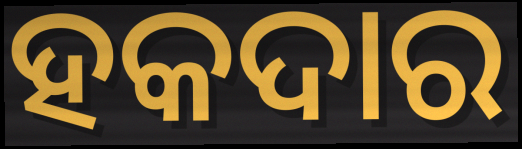
ହକଦାର